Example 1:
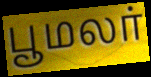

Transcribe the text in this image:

பூமலர்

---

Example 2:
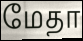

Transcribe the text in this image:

மேதா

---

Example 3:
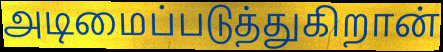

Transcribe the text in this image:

அடிமைப்படுத்துகிறான்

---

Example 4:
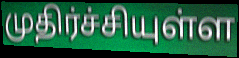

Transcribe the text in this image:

முதிர்ச்சியுள்ள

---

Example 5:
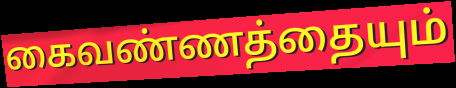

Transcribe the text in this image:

கைவண்ணத்தையும்